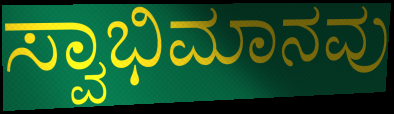
ಸ್ವಾಭಿಮಾನವು